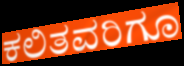
ಕಲಿತವರಿಗೂ